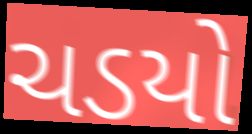
ચડયો